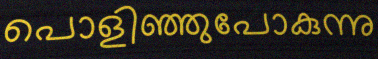
പൊളിഞ്ഞുപോകുന്നു